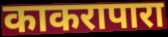
काकरापारा